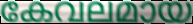
കേവലമായ